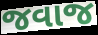
જવાજ